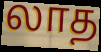
லாத